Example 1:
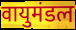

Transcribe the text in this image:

वायुमंडल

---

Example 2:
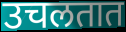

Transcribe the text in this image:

उचलतात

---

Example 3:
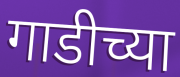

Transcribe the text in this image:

गाडीच्या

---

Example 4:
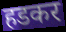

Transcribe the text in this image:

हडकर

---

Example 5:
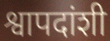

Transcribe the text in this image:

श्वापदांशी